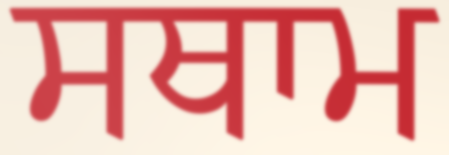
ਸਥਾਮ